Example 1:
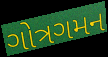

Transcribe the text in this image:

ગોત્રગમન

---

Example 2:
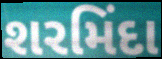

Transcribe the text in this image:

શરમિંદા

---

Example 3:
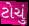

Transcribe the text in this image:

ટોચું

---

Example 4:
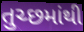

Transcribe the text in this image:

તુચ્છમાંથી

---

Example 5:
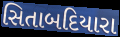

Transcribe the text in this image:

સિતાબદિયારા